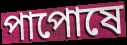
পাপোষে